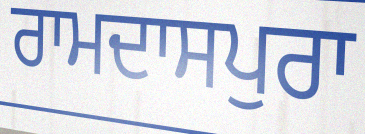
ਰਾਮਦਾਸਪੁਰਾ